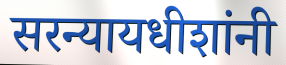
सरन्यायधीशांनी